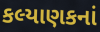
કલ્યાણકનાં